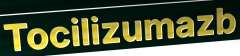
Tocilizumazb